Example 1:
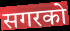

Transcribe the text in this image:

सगरको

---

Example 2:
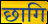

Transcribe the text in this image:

छागि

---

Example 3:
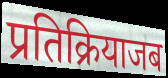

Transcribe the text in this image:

प्रतिक्रियाजब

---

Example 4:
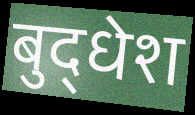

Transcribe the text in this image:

बुद्धेश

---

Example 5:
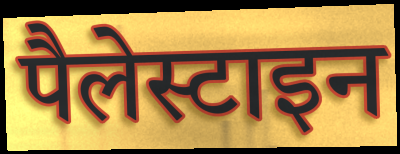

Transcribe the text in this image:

पैलेस्टाइन